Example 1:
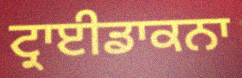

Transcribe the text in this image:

ਟ੍ਰਾਈਡਾਕਨਾ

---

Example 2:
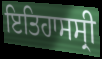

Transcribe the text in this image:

ਇਤਿਹਾਸਸ੍ਰੀ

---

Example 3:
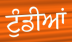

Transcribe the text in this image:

ਟੁੰਡੀਆਂ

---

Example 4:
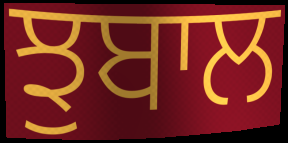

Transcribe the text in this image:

ਝੁਬਾਲ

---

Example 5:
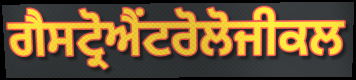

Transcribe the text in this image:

ਗੈਸਟ੍ਰੋਐਂਟਰੋਲੋਜੀਕਲ